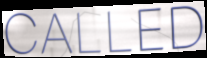
CALLED